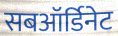
सबऑर्डिनेट